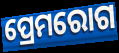
ପ୍ରେମରୋଗ